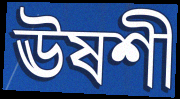
ঊষশী